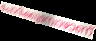
ചോദിക്കുമ്പോഴാണ്